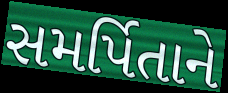
સમર્પિતાને